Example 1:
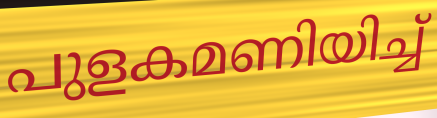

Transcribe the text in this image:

പുളകമണിയിച്ച്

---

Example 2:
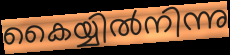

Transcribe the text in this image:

കൈയ്യിൽനിന്നു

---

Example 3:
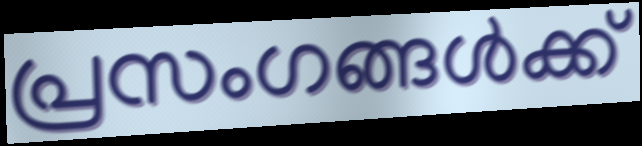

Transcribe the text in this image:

പ്രസംഗങ്ങൾക്ക്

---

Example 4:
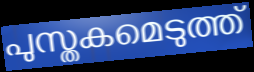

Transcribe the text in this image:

പുസ്തകമെടുത്ത്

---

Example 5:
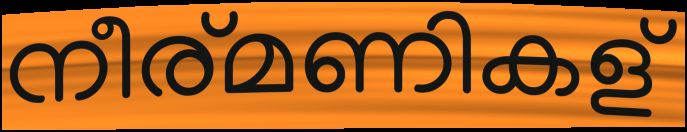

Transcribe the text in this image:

നീര്മണികള്